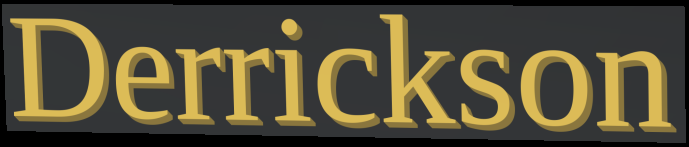
Derrickson